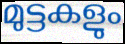
മുട്ടകളും